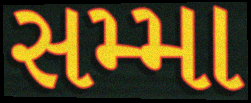
સમ્મા